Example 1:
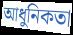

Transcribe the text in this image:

আধুনিকতা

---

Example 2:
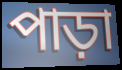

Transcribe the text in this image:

পাড়া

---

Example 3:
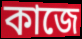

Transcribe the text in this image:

কাজে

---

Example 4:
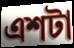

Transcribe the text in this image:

এশটা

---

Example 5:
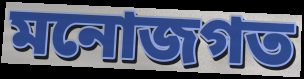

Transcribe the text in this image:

মনোজগত